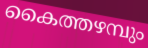
കൈത്തഴമ്പും